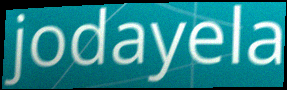
jodayela